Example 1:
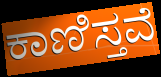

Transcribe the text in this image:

ಕಾಣಿಸ್ತವೆ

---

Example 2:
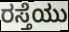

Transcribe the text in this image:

ರಸ್ತೆಯು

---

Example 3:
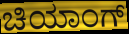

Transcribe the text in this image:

ಚಿಯಾಂಗ್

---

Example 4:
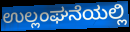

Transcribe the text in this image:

ಉಲ್ಲಂಘನೆಯಲ್ಲಿ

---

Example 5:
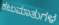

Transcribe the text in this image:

ಕಟುಮಾತುಗಳ